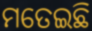
ମତେଇଛି